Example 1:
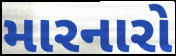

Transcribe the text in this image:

મારનારો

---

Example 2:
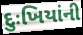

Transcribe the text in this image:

દુઃખિયાંની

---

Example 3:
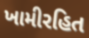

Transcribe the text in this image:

ખામીરહિત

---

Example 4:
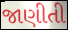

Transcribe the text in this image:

જાણીતી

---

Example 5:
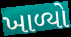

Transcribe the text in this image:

ખાળ્યો